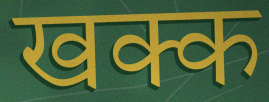
खक्क